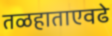
तळहाताएवढे